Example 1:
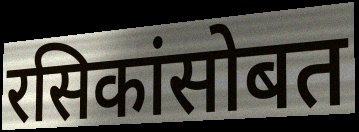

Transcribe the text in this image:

रसिकांसोबत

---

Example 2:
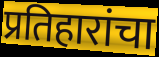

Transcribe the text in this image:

प्रतिहारांचा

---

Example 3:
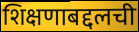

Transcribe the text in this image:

शिक्षणाबद्दलची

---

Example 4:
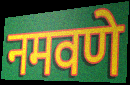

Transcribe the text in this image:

नमवणे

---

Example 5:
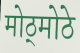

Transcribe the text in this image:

मोठ्मोठे